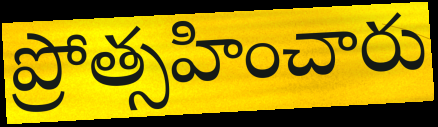
ప్రోత్సహించారు